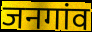
जनगांव